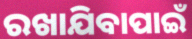
ରଖାଯିବାପାଇଁ